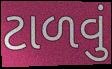
ટાળવું